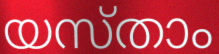
യസ്താം